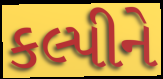
કલ્પીને